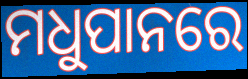
ମଧୁପାନରେ